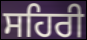
ਸਹਿਰੀ